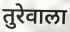
तुरेवाला